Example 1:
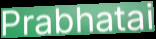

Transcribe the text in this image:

Prabhatai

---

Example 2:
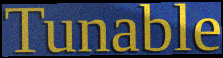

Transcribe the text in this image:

Tunable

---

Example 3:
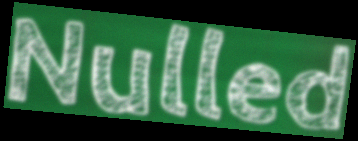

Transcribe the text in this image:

Nulled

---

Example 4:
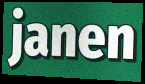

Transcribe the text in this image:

janen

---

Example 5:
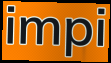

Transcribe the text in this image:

impi